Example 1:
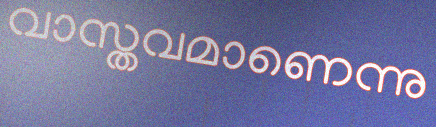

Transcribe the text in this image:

വാസ്തവമാണെന്നു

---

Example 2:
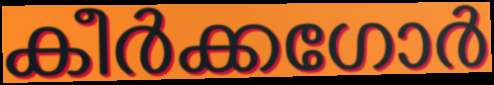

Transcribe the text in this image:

കീർക്കഗോർ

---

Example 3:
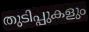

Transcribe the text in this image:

തുടിപ്പുകളും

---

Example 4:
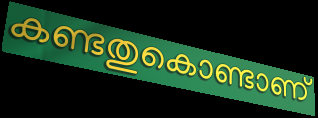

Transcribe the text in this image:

കണ്ടതുകൊണ്ടാണ്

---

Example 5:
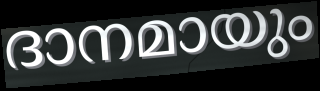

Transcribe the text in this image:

ദാനമായും